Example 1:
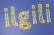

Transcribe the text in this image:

ilgili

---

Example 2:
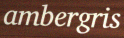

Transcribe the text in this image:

ambergris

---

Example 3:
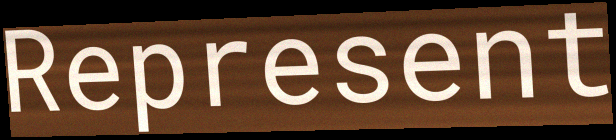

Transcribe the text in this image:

Represent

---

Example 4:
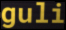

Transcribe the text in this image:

guli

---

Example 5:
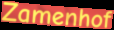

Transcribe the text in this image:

Zamenhof